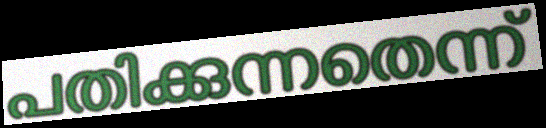
പതിക്കുന്നതെന്ന്